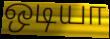
ஒடியா